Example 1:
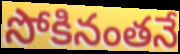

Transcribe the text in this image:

సోకినంతనే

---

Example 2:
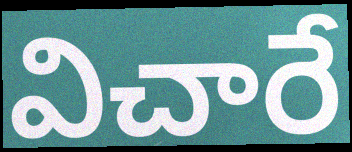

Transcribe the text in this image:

విచారే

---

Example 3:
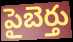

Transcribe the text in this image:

పైబెర్తు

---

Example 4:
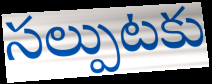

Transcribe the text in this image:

సల్పుటకు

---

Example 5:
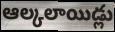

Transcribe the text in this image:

ఆల్కలాయిడ్లు